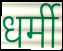
धर्मी